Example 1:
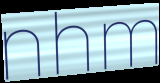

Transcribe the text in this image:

nhm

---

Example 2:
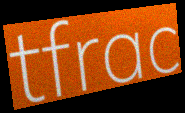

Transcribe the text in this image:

tfrac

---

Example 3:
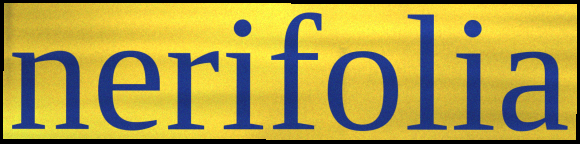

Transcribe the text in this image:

nerifolia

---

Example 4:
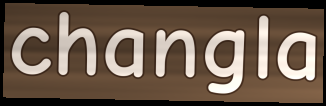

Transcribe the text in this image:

changla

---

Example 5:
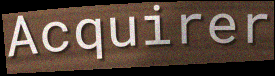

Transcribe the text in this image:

Acquirer